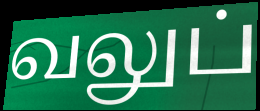
வலுப்